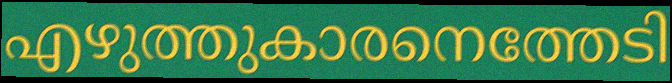
എഴുത്തുകാരനെത്തേടി